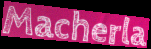
Macherla